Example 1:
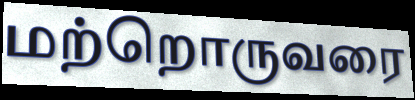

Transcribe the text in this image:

மற்றொருவரை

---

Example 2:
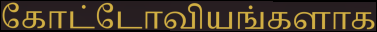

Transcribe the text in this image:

கோட்டோவியங்களாக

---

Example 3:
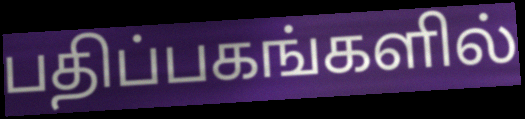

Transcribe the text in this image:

பதிப்பகங்களில்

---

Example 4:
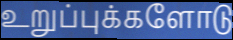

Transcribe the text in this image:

உறுப்புக்களோடு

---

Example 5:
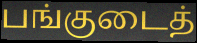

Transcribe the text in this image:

பங்குடைத்